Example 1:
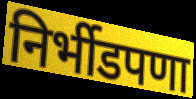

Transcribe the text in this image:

निर्भीडपणा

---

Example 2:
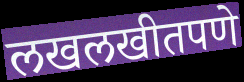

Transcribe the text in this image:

लखलखीतपणे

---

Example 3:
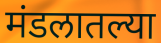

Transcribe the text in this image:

मंडलातल्या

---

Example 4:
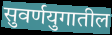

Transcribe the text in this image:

सुवर्णयुगातील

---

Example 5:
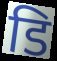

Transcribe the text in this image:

डि